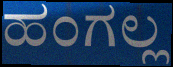
ಹಂಗಲ್ಲ